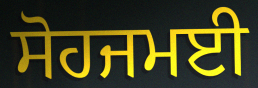
ਸੋਹਜਮਈ